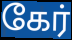
கேர்